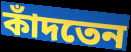
কাঁদতেন